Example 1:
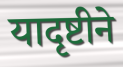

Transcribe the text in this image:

यादृष्टीने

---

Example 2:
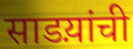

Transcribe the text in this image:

साडय़ांची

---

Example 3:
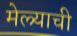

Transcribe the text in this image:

मेल्याची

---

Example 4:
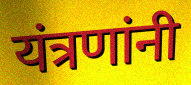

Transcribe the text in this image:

यंत्रणांनी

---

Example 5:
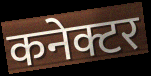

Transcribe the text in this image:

कनेक्टर